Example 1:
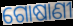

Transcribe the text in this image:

ଗୋଷାଣୀ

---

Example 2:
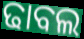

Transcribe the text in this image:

ଢାବଲ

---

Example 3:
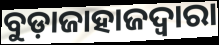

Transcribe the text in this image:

ବୁଡ଼ାଜାହାଜଦ୍ୱାରା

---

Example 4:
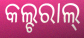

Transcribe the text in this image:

କଲ୍ଚରାଲ୍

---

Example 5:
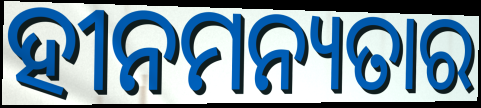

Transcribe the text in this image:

ହୀନମନ୍ୟତାର